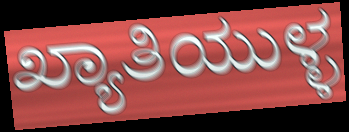
ಖ್ಯಾತಿಯುಳ್ಳ